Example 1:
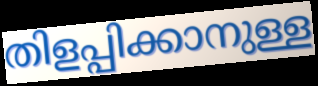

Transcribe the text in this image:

തിളപ്പിക്കാനുള്ള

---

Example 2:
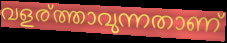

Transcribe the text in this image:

വളര്ത്താവുന്നതാണ്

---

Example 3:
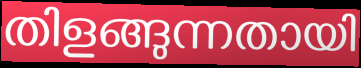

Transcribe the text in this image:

തിളങ്ങുന്നതായി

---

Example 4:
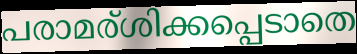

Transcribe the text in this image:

പരാമര്ശിക്കപ്പെടാതെ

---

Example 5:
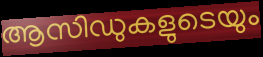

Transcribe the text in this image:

ആസിഡുകളുടെയും